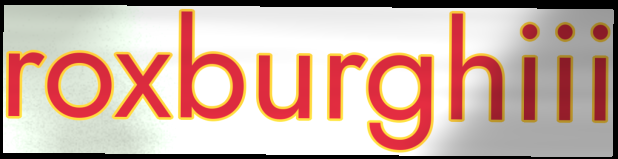
roxburghiii